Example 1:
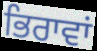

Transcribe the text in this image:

ਭਿਰਾਵਾਂ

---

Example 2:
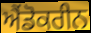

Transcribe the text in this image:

ਐਂਡੋਕਰੀਨ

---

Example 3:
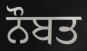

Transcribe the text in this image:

ਨੌਬਤ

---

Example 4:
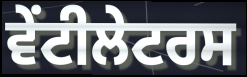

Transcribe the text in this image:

ਵੇਂਟੀਲੇਟਰਸ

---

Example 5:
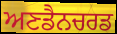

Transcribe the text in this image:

ਅਣਡੈਨਚਰਡ